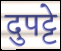
दुपट्टे